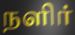
நளிர்